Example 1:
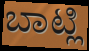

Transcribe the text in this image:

ಬಾಟ್ಲಿ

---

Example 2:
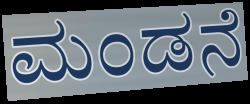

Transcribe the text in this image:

ಮಂಡನೆ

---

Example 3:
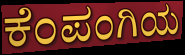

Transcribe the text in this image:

ಕೆಂಪಂಗಿಯ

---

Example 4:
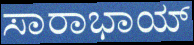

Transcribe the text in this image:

ಸಾರಾಭಾಯ್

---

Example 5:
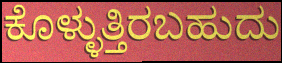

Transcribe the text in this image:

ಕೊಳ್ಳುತ್ತಿರಬಹುದು